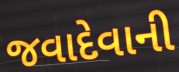
જવાદેવાની